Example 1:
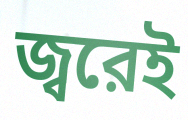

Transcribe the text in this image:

জ্বরেই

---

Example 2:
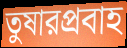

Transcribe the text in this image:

তুষারপ্রবাহ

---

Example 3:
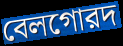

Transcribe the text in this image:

বেলগোরদ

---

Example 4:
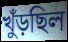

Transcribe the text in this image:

খুঁড়ছিল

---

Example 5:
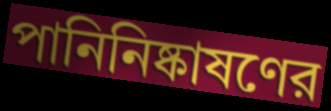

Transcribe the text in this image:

পানিনিষ্কাষণের